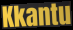
Kkantu